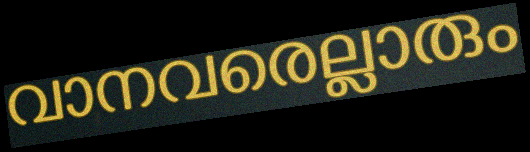
വാനവരെല്ലാരും